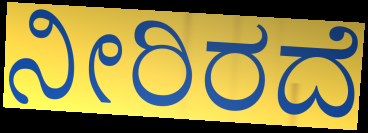
ನೀರಿರದೆ